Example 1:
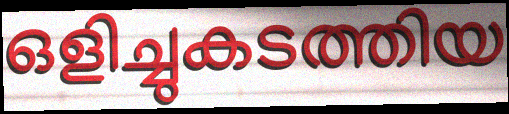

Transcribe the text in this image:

ഒളിച്ചുകടത്തിയ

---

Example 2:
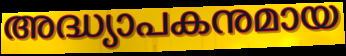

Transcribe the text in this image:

അദ്ധ്യാപകനുമായ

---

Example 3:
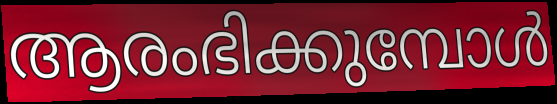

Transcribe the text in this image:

ആരംഭിക്കുമ്പോൾ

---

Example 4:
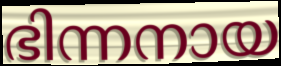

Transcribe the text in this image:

ഭിന്നനായ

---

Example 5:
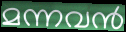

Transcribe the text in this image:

മന്നവൻ